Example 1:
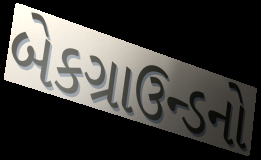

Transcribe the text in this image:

બેકગ્રાઉન્ડનો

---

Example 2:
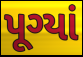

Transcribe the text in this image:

પૂગ્યાં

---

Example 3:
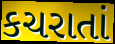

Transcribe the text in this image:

કચરાતાં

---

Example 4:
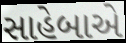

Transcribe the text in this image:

સાહેબાએ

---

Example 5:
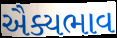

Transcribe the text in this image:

ઐક્યભાવ